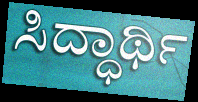
ಸಿದ್ಧಾರ್ಥಿ